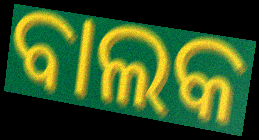
ବାଲକ